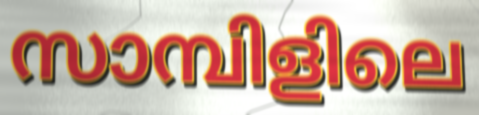
സാമ്പിളിലെ